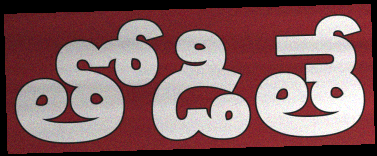
తోడితే